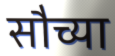
सौच्या